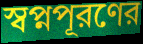
স্বপ্নপূরণের